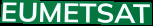
EUMETSAT